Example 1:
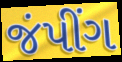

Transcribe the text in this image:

જંપીંગ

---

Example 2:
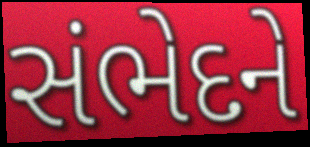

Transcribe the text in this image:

સંભેદને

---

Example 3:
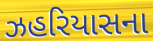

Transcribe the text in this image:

ઝહરિયાસના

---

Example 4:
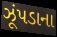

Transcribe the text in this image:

ઝૂંપડાના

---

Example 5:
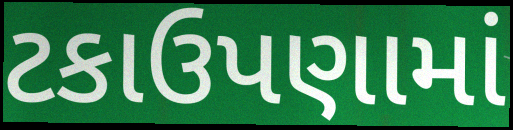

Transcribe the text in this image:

ટકાઉપણામાં